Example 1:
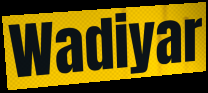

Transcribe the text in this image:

Wadiyar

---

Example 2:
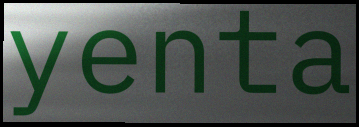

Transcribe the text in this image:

yenta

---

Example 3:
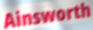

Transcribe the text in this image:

Ainsworth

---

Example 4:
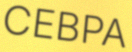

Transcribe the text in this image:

CEBPA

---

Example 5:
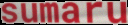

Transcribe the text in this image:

sumaru